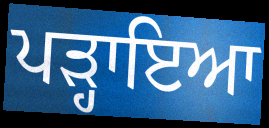
ਪੜ੍ਹਾਇਆ